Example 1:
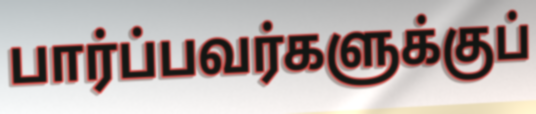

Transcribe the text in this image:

பார்ப்பவர்களுக்குப்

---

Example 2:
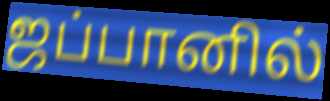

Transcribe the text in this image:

ஜப்பானில்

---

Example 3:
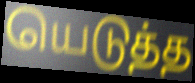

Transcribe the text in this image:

யெடுத்த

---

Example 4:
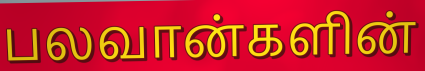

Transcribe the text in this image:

பலவான்களின்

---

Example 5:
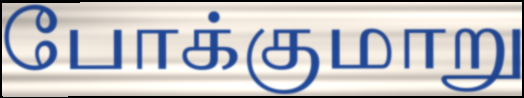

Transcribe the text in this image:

போக்குமாறு